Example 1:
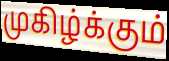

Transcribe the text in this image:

முகிழ்க்கும்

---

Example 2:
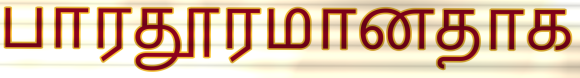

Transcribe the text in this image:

பாரதூரமானதாக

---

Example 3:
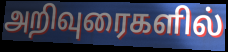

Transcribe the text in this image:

அறிவுரைகளில்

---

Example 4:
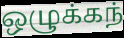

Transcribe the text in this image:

ஒழுக்கந்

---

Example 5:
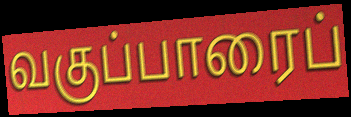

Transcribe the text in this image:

வகுப்பாரைப்